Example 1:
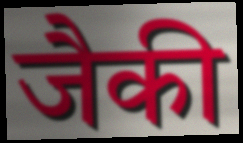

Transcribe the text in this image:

जैकी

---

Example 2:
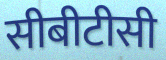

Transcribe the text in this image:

सीबीटीसी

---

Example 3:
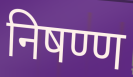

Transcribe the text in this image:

निषण्ण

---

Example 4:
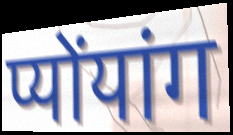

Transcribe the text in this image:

प्योंयांग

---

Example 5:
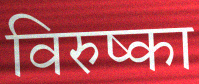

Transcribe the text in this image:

विरुष्का